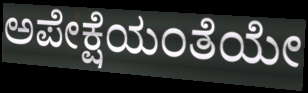
ಅಪೇಕ್ಷೆಯಂತೆಯೇ